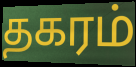
தகரம்